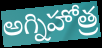
అగ్నిహోత్ర